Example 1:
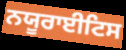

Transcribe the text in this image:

ਨਯੂਰਾਈਟਿਸ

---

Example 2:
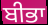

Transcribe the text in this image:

ਬੀਭਾ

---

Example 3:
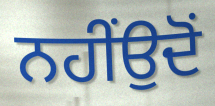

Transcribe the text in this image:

ਨਹੀਂਉਦੋਂ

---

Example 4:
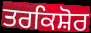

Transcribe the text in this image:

ਤਰਕਿਸ਼ੋਰ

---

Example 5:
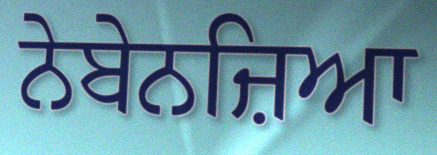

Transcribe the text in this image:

ਨੇਬੇਨਜ਼ਿਆ